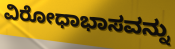
ವಿರೋಧಾಭಾಸವನ್ನು